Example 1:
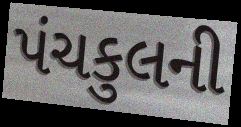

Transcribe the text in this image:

પંચકુલની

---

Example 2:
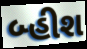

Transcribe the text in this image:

બ્હીશ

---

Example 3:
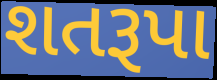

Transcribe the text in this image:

શતરૂપા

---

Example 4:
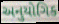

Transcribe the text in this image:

અનુયોગિક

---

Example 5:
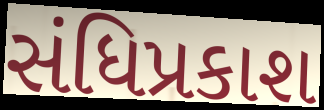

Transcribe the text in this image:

સંધિપ્રકાશ